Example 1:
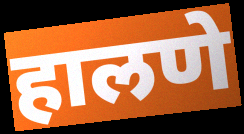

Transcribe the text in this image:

हालणे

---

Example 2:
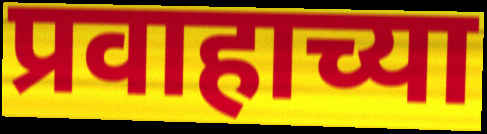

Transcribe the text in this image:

प्रवाहाच्या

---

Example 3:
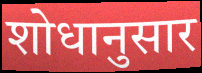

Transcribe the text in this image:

शोधानुसार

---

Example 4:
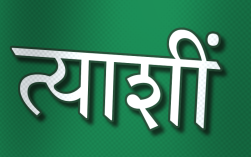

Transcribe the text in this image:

त्याशीं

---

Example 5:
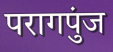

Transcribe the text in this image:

परागपुंज